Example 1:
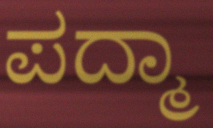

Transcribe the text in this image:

ಪದ್ಮಾ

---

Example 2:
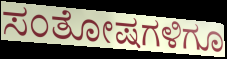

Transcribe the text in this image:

ಸಂತೋಷಗಳಿಗೂ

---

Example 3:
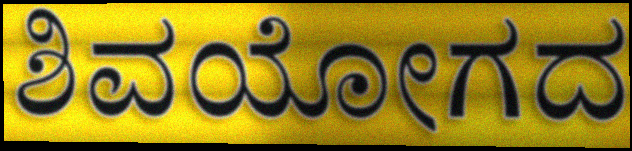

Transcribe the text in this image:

ಶಿವಯೋಗದ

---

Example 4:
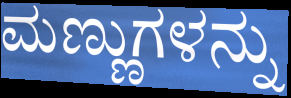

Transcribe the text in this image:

ಮಣ್ಣುಗಳನ್ನು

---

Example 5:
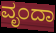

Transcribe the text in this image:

ವೃಂದಾ